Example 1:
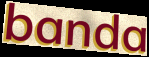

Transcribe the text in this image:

banda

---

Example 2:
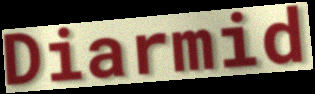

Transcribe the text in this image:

Diarmid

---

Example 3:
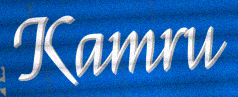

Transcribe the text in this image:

Kamru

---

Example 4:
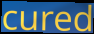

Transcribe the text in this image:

cured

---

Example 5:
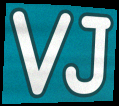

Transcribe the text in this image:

VJ